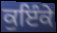
ਕੁਇੰਕੇ